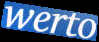
werto